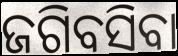
ଜଗିବସିବା